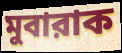
মুবারাক